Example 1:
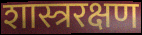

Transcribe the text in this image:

शास्त्ररक्षण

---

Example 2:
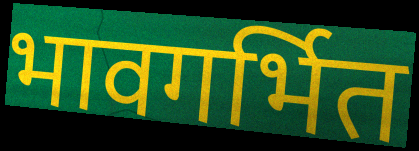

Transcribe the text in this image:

भावगर्भित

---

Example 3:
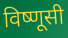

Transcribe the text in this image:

विष्णूसी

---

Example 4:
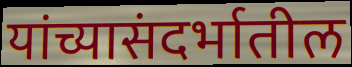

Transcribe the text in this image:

यांच्यासंदर्भातील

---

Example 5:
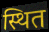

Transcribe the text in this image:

स्थित